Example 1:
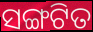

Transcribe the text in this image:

ସଙ୍ଗଟିତ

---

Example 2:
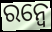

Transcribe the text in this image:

ରନ୍ୱେ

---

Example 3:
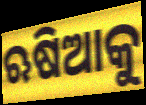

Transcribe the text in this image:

ଋଷିଆକୁ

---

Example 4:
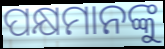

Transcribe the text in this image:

ପକ୍ଷମାନଙ୍କୁ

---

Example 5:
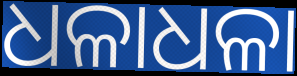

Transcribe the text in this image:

ଧଳାଧଳା